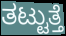
ತಟ್ಟುತ್ತೆ